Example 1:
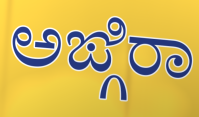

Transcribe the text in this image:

ಅಙ್ಗಿರಾ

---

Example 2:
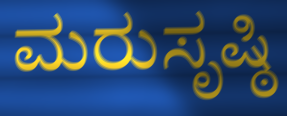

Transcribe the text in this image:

ಮರುಸೃಷ್ಠಿ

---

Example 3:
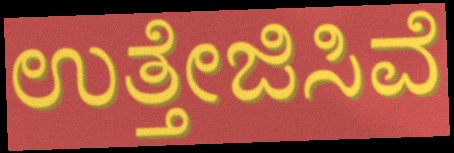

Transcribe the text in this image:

ಉತ್ತೇಜಿಸಿವೆ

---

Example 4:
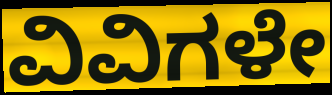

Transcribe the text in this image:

ವಿವಿಗಳೇ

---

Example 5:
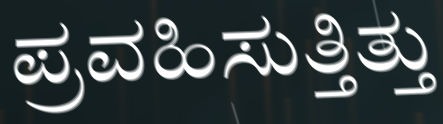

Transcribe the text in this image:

ಪ್ರವಹಿಸುತ್ತಿತ್ತು